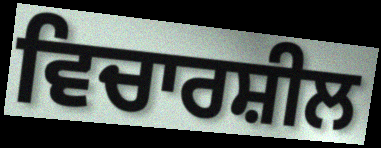
ਵਿਚਾਰਸ਼ੀਲ